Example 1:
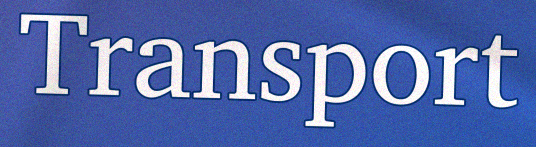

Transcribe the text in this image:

Transport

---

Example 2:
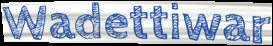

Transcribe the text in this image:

Wadettiwar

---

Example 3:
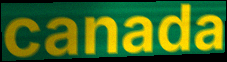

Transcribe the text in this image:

canada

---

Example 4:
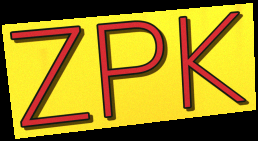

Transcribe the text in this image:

ZPK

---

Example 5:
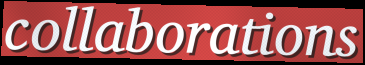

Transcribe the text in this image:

collaborations